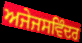
ਅਜੇਜਸਵਿੰਦਰ